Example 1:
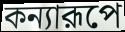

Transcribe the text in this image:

কন্যারূপে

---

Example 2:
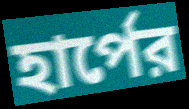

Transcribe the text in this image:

হার্পের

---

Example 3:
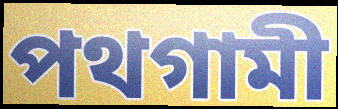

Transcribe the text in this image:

পথগামী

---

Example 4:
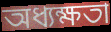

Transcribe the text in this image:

অধ্যক্ষতা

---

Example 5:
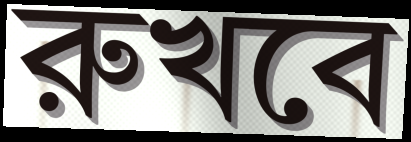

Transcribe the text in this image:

রুখবে